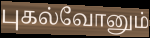
புகல்வோனும்